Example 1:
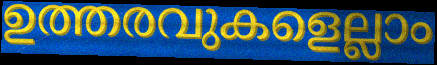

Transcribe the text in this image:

ഉത്തരവുകളെല്ലാം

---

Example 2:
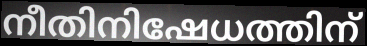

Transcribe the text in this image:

നീതിനിഷേധത്തിന്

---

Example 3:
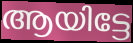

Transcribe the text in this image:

ആയിട്ടേ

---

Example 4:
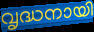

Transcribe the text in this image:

വൃദ്ധനായി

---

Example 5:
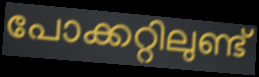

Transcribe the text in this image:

പോക്കറ്റിലുണ്ട്